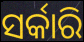
ସର୍କାରି